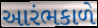
આરંભકાળે